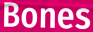
Bones